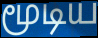
மூடிய